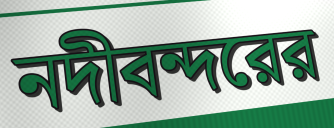
নদীবন্দরের